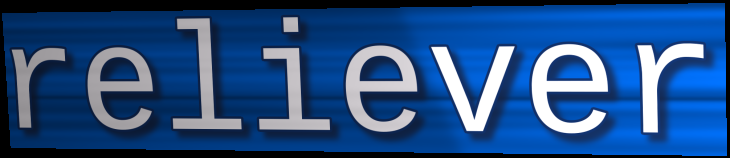
reliever